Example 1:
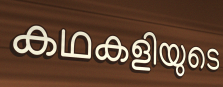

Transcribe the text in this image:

കഥകളിയുടെ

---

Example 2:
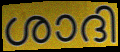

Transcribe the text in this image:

ശാദി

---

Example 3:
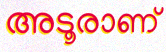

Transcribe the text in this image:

അടൂരാണ്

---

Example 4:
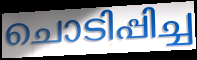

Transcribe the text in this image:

ചൊടിപ്പിച്ച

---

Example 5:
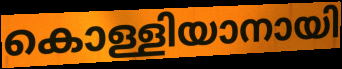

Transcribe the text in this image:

കൊള്ളിയാനായി